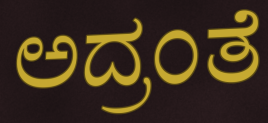
ಅದ್ರಂತೆ